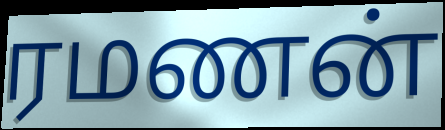
ரமணன்